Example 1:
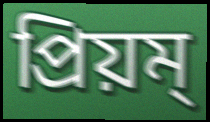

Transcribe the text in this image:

প্রিয়ম্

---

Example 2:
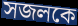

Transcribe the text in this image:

সজলকে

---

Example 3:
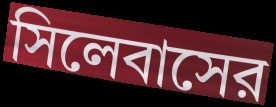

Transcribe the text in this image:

সিলেবাসের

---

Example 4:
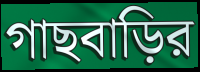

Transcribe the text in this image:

গাছবাড়ির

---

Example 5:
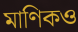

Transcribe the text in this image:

মাণিকও